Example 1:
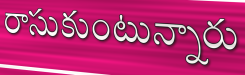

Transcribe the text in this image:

రాసుకుంటున్నారు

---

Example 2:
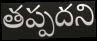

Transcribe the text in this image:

తప్పదని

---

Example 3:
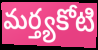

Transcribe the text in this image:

మర్త్యకోటి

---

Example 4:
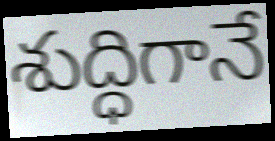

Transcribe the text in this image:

శుద్ధిగానే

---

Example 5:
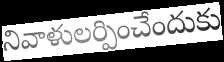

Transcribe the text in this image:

నివాళులర్పించేందుకు